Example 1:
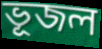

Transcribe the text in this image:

ভূজল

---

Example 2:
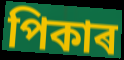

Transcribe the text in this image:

পিকাৰ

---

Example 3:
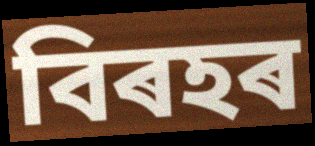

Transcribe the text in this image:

বিৰহৰ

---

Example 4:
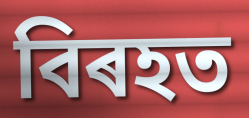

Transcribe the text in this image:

বিৰহত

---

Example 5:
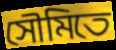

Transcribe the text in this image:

সৌমিতে